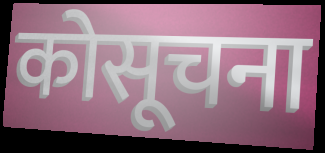
कोसूचना